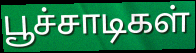
பூச்சாடிகள்